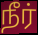
நீர்